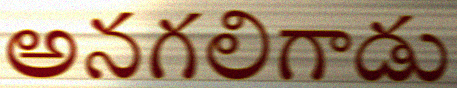
అనగలిగాడు